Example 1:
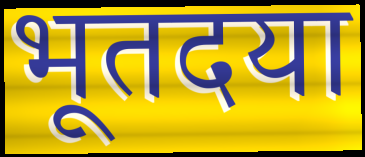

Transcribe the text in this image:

भूतदया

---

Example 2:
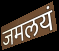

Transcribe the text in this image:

जमलयं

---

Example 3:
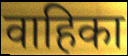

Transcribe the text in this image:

वाहिका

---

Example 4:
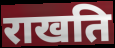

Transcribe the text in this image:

राखति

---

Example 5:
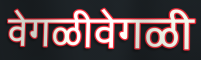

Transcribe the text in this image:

वेगळीवेगळी